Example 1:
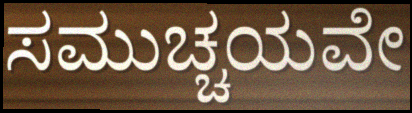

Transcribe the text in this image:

ಸಮುಚ್ಚಯವೇ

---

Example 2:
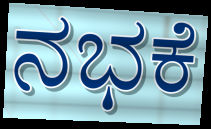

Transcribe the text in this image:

ನಭಕೆ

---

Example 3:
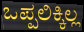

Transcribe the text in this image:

ಒಪ್ಪಲಿಕ್ಕಿಲ್ಲ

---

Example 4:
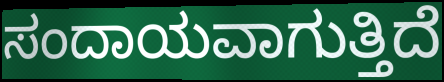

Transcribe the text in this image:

ಸಂದಾಯವಾಗುತ್ತಿದೆ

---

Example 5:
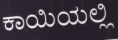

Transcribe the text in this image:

ಕಾಯಿಯಲ್ಲಿ